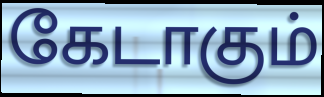
கேடாகும்